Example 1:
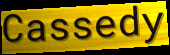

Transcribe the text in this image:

Cassedy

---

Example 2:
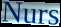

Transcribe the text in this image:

Nurs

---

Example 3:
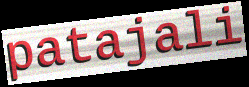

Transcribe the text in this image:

patajali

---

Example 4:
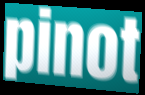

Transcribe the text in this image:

pinot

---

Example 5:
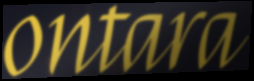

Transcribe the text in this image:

ontara